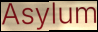
Asylum